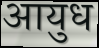
आयुध